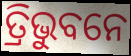
ତ୍ରିଭୁବନେ